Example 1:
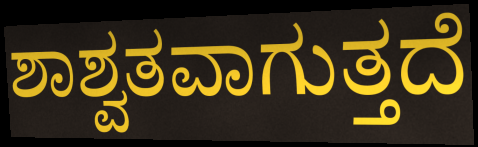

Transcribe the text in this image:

ಶಾಶ್ವತವಾಗುತ್ತದೆ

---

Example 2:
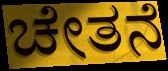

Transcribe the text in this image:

ಚೇತನೆ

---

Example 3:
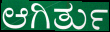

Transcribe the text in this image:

ಆಗಿರ್ತು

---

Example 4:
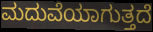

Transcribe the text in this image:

ಮದುವೆಯಾಗುತ್ತದೆ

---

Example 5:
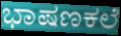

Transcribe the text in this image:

ಭಾಷಣಕಲೆ